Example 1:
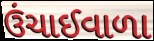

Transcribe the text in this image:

ઉંચાઈવાળા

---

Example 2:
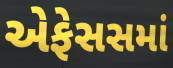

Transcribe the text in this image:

એફેસસમાં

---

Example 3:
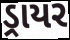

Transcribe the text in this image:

ડ્રાયર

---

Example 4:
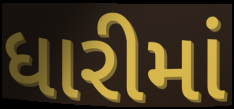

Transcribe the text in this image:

ધારીમાં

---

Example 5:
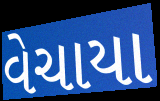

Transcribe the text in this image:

વેચાયા